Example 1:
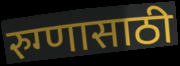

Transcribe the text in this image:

रुग्णासाठी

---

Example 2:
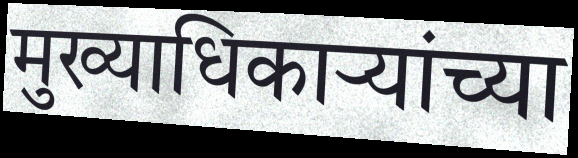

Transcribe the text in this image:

मुख्याधिकाऱ्यांच्या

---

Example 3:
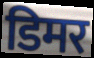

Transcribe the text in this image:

डिमर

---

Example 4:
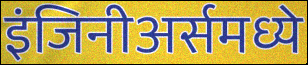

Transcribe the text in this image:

इंजिनीअर्समध्ये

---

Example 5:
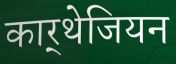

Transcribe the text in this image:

कार्थेजियन